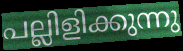
പല്ലിളിക്കുന്നു